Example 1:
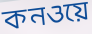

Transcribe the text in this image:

কনওয়ে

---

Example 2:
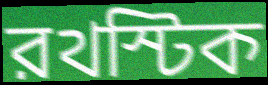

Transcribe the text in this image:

রথস্টিক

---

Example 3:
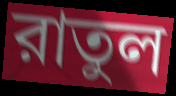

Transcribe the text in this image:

রাতুল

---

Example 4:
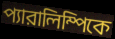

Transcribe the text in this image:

প্যারালিম্পিকে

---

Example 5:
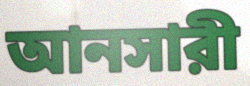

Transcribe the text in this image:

আনসারী